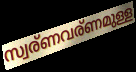
സ്വര്ണവര്ണമുള്ള